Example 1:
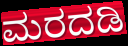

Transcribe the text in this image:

ಮರದಡಿ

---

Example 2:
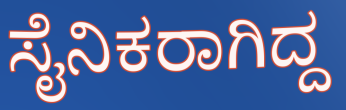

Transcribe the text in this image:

ಸೈನಿಕರಾಗಿದ್ದ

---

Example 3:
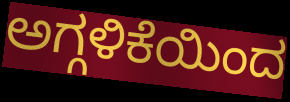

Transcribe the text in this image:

ಅಗ್ಗಳಿಕೆಯಿಂದ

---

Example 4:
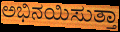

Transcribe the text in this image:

ಅಭಿನಯಿಸುತ್ತಾ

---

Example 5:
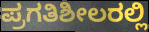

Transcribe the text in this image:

ಪ್ರಗತಿಶೀಲರಲ್ಲಿ